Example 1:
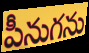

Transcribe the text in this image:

పీనుగను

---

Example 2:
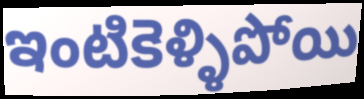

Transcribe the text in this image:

ఇంటికెళ్ళిపోయి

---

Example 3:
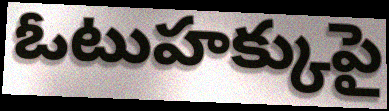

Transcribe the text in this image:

ఓటుహక్కుపై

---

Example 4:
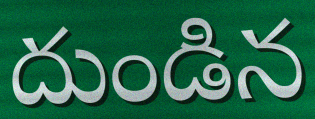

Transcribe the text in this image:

దుండిన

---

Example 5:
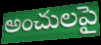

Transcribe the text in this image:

అంచులపై